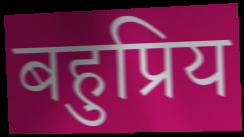
बहुप्रिय